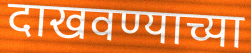
दाखवण्याच्या